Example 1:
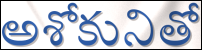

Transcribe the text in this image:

అశోకునితో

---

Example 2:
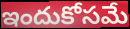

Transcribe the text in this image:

ఇందుకోసమే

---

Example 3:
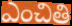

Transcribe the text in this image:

ఎంచితి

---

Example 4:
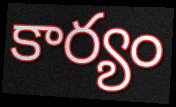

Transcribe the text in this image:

కార్యం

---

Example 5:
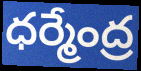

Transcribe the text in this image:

ధర్మేంద్ర